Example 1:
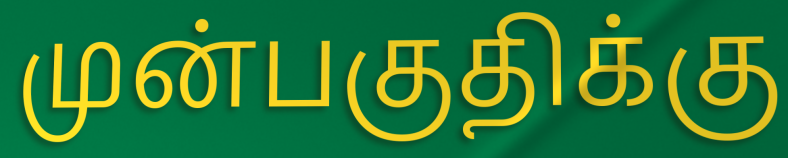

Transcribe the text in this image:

முன்பகுதிக்கு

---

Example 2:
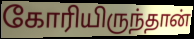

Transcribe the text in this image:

கோரியிருந்தான்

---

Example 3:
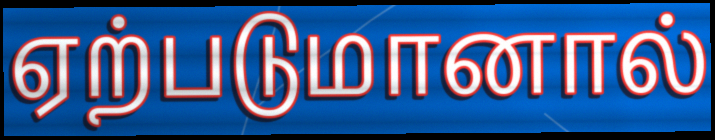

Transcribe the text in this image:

ஏற்படுமானால்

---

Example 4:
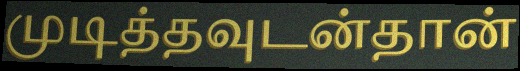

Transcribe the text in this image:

முடித்தவுடன்தான்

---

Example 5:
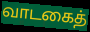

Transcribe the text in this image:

வாடகைத்